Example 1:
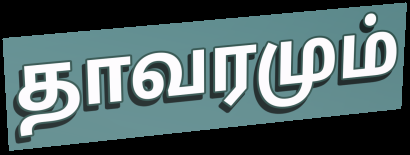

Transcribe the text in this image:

தாவரமும்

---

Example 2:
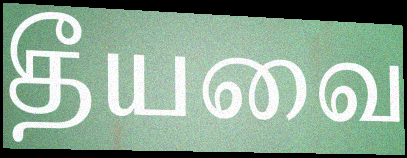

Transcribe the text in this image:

தீயவை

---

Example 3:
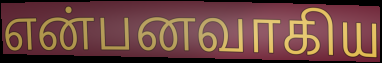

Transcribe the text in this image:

என்பனவாகிய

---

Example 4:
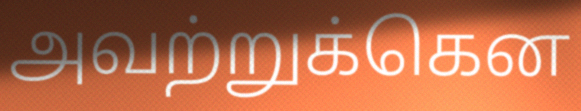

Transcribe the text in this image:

அவற்றுக்கென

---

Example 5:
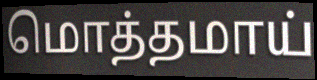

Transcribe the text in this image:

மொத்தமாய்